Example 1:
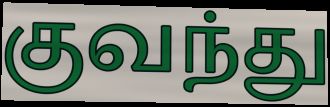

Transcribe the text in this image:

குவந்து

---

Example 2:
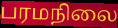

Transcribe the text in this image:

பரமநிலை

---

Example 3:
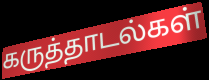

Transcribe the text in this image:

கருத்தாடல்கள்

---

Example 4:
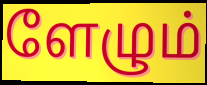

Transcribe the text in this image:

ளேழும்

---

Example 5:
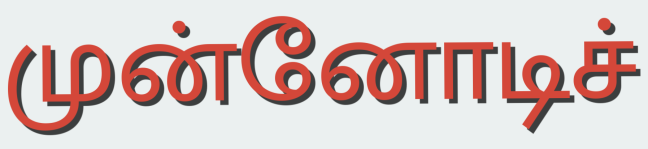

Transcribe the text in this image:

முன்னோடிச்